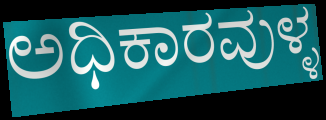
ಅಧಿಕಾರವುಳ್ಳ